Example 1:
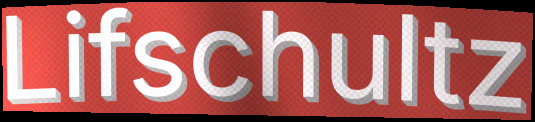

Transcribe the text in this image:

Lifschultz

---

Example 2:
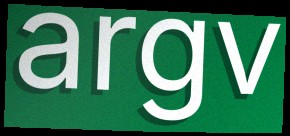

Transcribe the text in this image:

argv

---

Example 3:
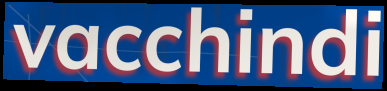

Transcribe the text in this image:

vacchindi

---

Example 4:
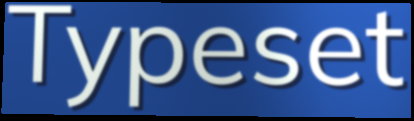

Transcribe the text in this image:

Typeset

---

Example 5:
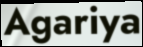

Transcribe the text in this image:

Agariya